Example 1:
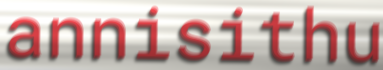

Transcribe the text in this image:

annisithu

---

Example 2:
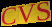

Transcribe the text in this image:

CVS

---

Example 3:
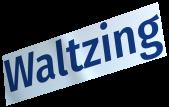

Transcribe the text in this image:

Waltzing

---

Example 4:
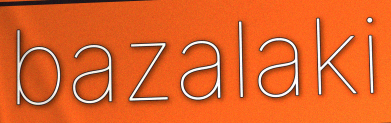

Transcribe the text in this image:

bazalaki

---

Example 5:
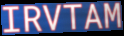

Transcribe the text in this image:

IRVTAM